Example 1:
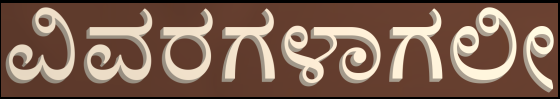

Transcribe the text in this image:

ವಿವರಗಳಾಗಲೀ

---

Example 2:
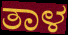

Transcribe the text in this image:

ತಾಳ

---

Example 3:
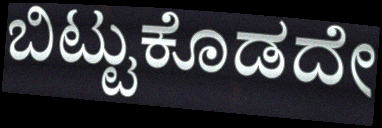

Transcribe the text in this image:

ಬಿಟ್ಟುಕೊಡದೇ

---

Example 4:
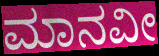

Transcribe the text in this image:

ಮಾನವೀ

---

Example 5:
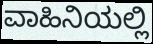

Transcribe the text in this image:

ವಾಹಿನಿಯಲ್ಲಿ